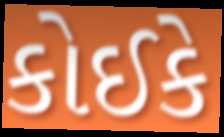
કોઈકે